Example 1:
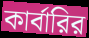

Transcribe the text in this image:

কার্বারির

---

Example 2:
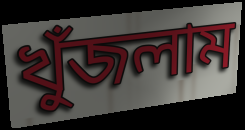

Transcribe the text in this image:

খুঁজলাম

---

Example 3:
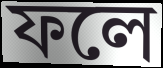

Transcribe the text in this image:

ফলে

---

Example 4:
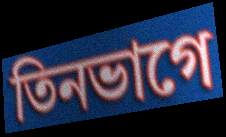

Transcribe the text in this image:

তিনভাগে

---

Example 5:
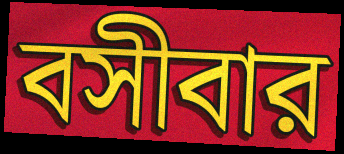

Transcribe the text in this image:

বসীবার